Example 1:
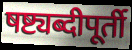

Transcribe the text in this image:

षष्ट्यब्दीपूर्ती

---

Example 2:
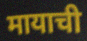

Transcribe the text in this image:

मायाची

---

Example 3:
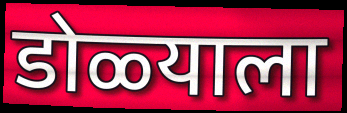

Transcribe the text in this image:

डोळ्याला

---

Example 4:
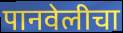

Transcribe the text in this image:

पानवेलीचा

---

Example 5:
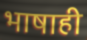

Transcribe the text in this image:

भाषाही